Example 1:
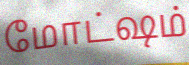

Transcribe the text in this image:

மோட்ஷம்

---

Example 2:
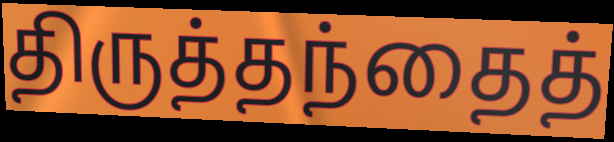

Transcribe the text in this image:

திருத்தந்தைத்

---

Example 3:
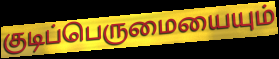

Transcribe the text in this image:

குடிப்பெருமையையும்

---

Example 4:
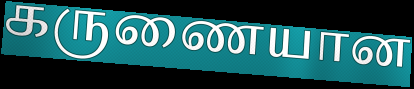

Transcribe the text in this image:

கருணையான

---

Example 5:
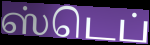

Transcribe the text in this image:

ஸ்டெப்